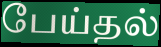
பேய்தல்